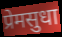
प्रेमसुधा